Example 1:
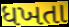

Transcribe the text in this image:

ધખતા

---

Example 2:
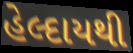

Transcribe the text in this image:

હેલ્દાયથી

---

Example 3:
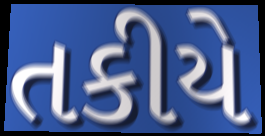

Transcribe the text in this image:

તકીયે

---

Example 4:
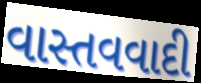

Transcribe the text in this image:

વાસ્તવવાદી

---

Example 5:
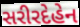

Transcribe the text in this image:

સરીરદેહેન